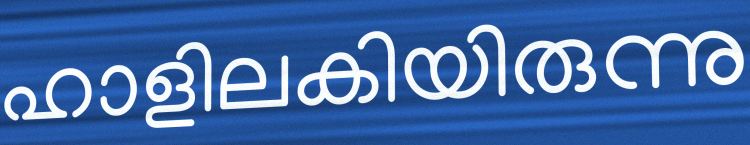
ഹാളിലകിയിരുന്നു